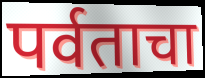
पर्वताचा